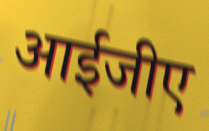
आईजीए